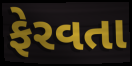
ફેરવતા